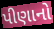
પીણાનો